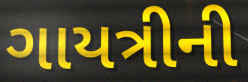
ગાયત્રીની